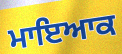
ਮਾਇਆਕ